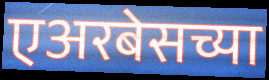
एअरबेसच्या